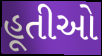
હૂતીઓ